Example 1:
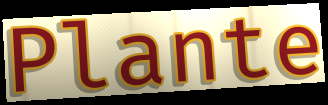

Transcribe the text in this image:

Plante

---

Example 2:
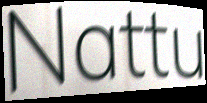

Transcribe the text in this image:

Nattu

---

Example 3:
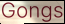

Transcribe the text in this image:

Gongs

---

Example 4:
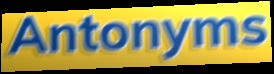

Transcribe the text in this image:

Antonyms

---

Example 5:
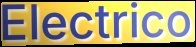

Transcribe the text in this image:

Electrico